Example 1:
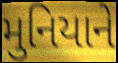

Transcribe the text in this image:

મુનિયાને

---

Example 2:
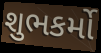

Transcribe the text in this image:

શુભકર્મો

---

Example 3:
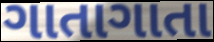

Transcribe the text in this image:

ગાતાગાતા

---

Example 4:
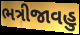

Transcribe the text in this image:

ભત્રીજાવહુ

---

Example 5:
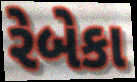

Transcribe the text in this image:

રેબેકા